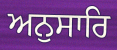
ਅਨੁਸਾਰਿ